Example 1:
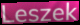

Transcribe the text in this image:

Leszek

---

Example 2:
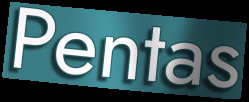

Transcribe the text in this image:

Pentas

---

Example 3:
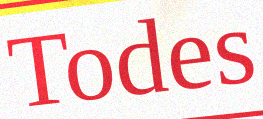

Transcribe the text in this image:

Todes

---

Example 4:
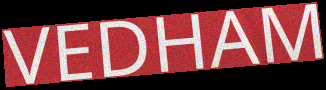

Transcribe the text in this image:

VEDHAM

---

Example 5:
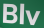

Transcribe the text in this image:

Blv